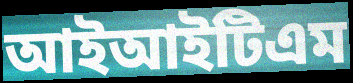
আইআইটিএম